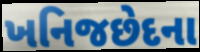
ખનિજછેદના